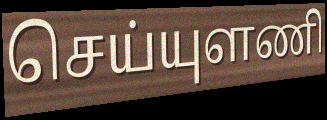
செய்யுளணி